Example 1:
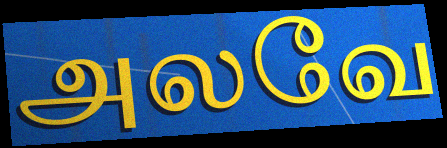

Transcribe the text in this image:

அலவே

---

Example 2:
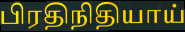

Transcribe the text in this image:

பிரதிநிதியாய்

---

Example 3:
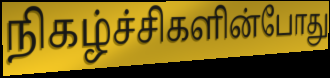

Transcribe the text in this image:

நிகழ்ச்சிகளின்போது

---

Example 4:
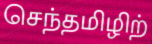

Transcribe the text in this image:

செந்தமிழிற்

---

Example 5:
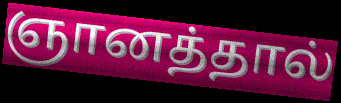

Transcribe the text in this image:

ஞானத்தால்